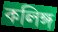
কলিঙ্গ